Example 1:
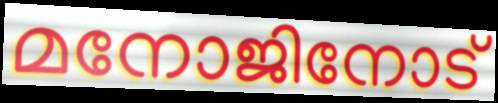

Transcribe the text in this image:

മനോജിനോട്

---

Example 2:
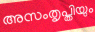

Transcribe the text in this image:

അസംതൃപ്തിയും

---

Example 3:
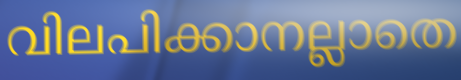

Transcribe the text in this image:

വിലപിക്കാനല്ലാതെ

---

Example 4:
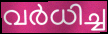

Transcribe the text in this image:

വർധിച്ച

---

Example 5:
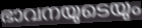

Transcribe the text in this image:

ഭാവനയുടെയും